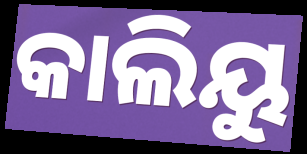
କାଲିୟୁ